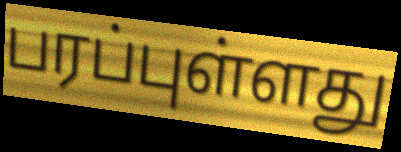
பரப்புள்ளது